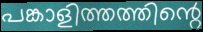
പങ്കാളിത്തത്തിന്റെ